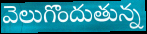
వెలుగొందుతున్న